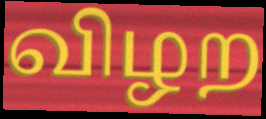
விழற